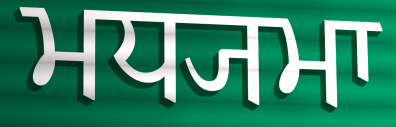
ਮਧ੍ਯਮਾ